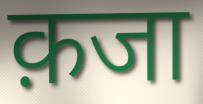
क़जा